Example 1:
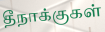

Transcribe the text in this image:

தீநாக்குகள்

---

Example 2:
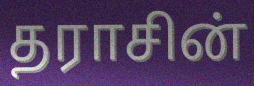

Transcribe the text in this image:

தராசின்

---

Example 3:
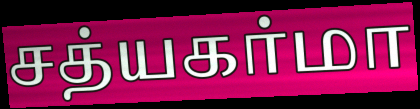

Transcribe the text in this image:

சத்யகர்மா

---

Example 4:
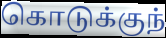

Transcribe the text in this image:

கொடுக்குந்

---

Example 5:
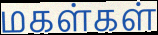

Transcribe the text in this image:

மகள்கள்